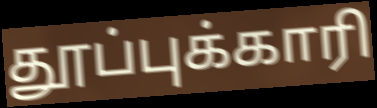
தூப்புக்காரி